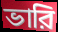
ভারি